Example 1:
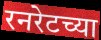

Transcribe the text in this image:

रनरेटच्या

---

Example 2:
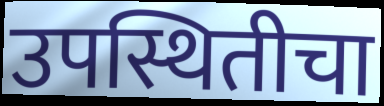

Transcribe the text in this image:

उपस्थितीचा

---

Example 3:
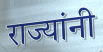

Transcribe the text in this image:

राज्यांनी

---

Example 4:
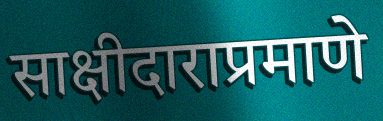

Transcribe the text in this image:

साक्षीदाराप्रमाणे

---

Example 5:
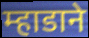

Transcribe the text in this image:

म्हाडाने